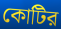
কোটির